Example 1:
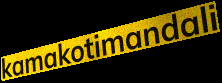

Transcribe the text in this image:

kamakotimandali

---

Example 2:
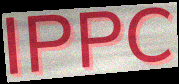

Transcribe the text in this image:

IPPC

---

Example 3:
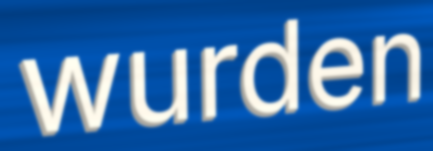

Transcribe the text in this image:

wurden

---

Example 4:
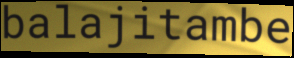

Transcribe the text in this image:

balajitambe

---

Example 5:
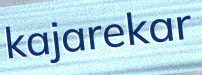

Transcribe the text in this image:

kajarekar